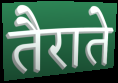
तैराते